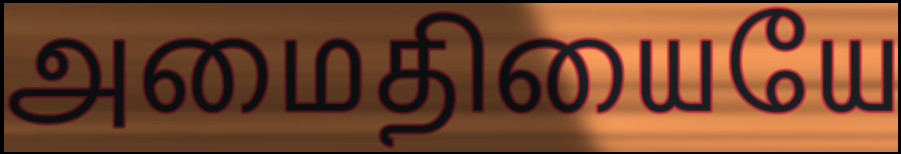
அமைதியையே